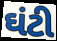
ઘંટી